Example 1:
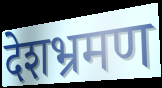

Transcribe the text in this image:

देशभ्रमण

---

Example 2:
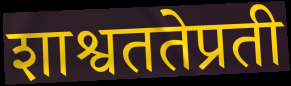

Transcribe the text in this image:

शाश्वततेप्रती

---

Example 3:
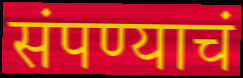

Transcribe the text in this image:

संपण्याचं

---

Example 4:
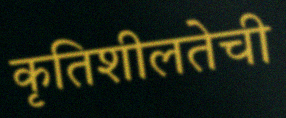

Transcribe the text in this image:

कृतिशीलतेची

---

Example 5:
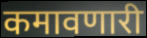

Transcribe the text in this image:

कमावणारी